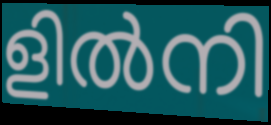
ളിൽനി